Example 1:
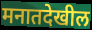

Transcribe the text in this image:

मनातदेखील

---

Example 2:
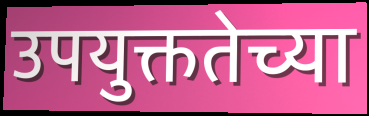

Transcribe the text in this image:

उपयुक्ततेच्या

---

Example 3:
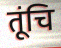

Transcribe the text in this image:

तूंचि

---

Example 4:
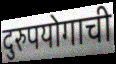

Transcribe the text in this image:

दुरुपयोगाची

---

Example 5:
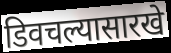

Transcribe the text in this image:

डिवचल्यासारखे